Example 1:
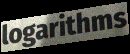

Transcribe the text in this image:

logarithms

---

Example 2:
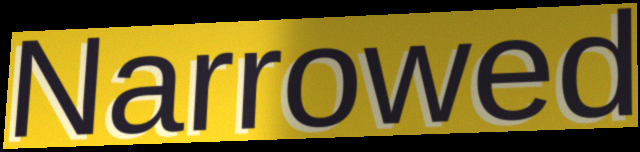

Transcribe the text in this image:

Narrowed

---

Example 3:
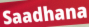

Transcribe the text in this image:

Saadhana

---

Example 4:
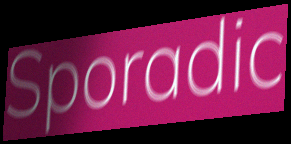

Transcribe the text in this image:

Sporadic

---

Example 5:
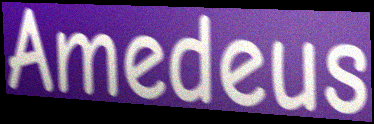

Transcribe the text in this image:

Amedeus